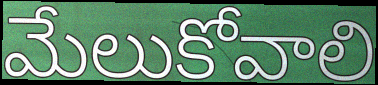
మేలుకోవాలి